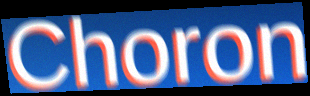
Choron